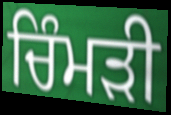
ਚਿੰਮੜੀ